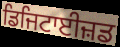
ਡਿਜਿਟਾਈਜ਼ਡ